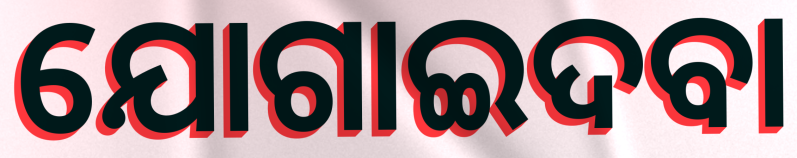
ଯୋଗାଇଦବା